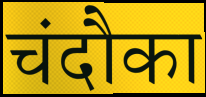
चंदौका